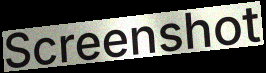
Screenshot